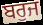
ਬਰੁਜ